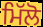
ਮਿੱਲੋ